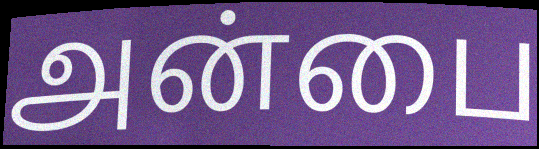
அன்பை